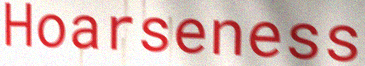
Hoarseness